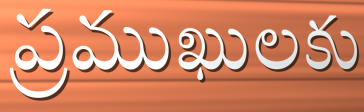
ప్రముఖులకు